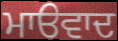
ਮਾੳਵਾਦ